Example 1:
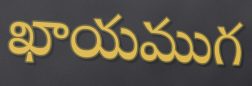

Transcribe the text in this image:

ఖాయముగ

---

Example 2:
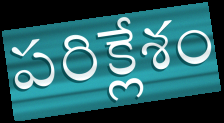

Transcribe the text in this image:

పరిక్లేశం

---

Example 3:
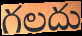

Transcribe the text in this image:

గలదు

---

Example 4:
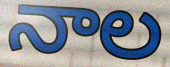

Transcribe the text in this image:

నాల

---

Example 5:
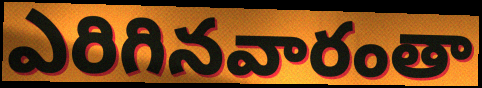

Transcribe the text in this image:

ఎరిగినవారంతా